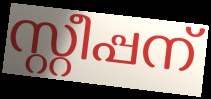
സ്റ്റീപ്പന്